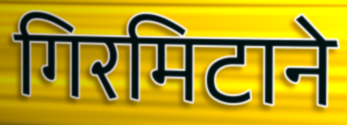
गिरमिटाने